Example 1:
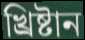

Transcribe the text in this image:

খ্ৰিষ্টান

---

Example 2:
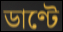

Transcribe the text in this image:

ডাণ্টে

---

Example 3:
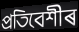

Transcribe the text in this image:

প্ৰতিবেশীৰ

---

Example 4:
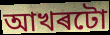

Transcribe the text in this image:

আখৰটো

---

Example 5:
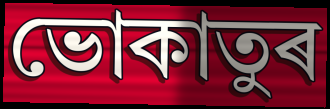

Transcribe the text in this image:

ভোকাতুৰ